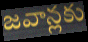
జవాన్లకు